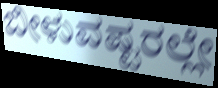
ಬೀಳುವಷ್ಟರಲ್ಲೇ